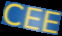
CEE